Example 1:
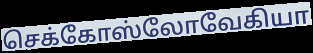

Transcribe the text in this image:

செக்கோஸ்லோவேகியா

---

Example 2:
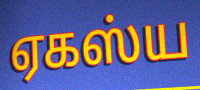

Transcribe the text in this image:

ஏகஸ்ய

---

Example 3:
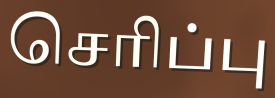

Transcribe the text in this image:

செரிப்பு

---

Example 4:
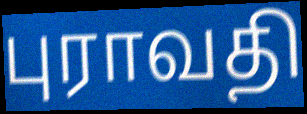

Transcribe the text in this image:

புராவதி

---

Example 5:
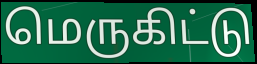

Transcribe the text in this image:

மெருகிட்டு